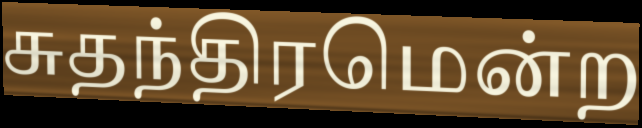
சுதந்திரமென்ற